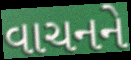
વાચનને